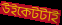
উইকেটটাই